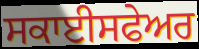
ਸਕਾਈਸਫੇਅਰ